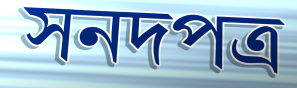
সনদপত্র